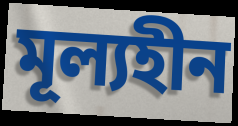
মূল্যহীন